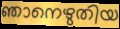
ഞാനെഴുതിയ